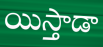
యిస్తాడా